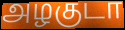
அழகுடா